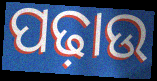
ପଢ଼ାଉ